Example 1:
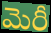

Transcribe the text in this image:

మెరీ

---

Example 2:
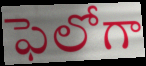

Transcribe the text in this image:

ఫెలోగా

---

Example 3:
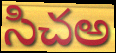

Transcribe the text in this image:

సిచఅ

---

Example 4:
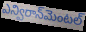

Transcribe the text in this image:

ఎన్విరాన్‌మెంటల్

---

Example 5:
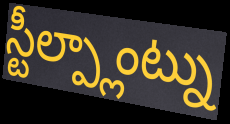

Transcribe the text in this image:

స్టీల్ప్లాంట్ను